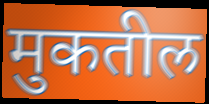
मुकतील